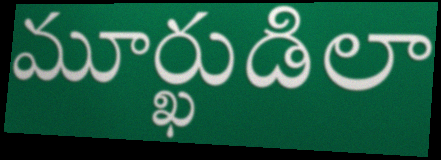
మూర్ఖుడిలా